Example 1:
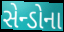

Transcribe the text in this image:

સેન્ડોના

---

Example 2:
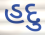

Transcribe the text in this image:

હદુ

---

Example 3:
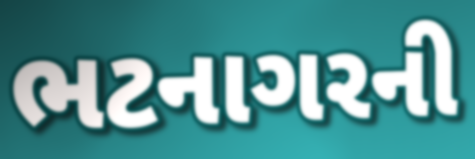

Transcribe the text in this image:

ભટનાગરની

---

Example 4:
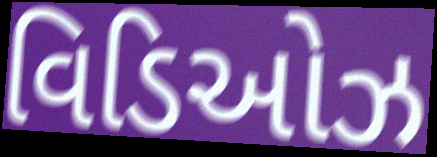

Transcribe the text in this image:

વિડિઓઝ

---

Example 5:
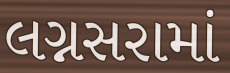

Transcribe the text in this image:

લગ્નસરામાં